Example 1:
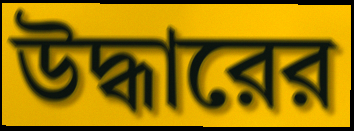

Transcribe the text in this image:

উদ্ধারের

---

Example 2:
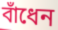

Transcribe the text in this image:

বাঁধেন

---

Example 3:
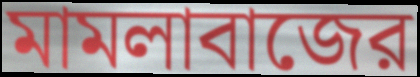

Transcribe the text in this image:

মামলাবাজের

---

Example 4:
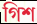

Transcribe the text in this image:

গিশ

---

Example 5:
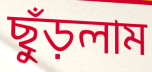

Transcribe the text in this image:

ছুঁড়লাম